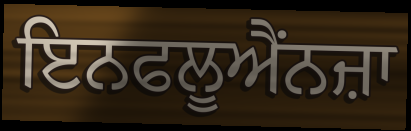
ਇਨਫਲੂਐਂਨਜ਼ਾ